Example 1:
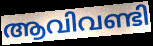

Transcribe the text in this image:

ആവിവണ്ടി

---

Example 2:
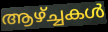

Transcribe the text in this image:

ആഴ്ച്ചകൾ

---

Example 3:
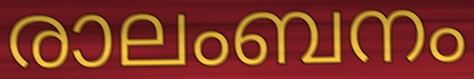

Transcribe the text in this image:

രാലംബനം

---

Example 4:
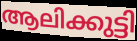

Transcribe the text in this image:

ആലിക്കുട്ടി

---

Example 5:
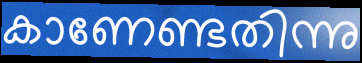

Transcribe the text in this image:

കാണേണ്ടതിന്നു